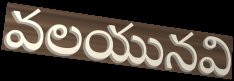
వలయునవి